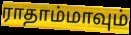
ராதாம்மாவும்